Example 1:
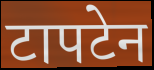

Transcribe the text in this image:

टापटेन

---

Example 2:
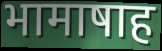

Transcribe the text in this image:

भामाषाह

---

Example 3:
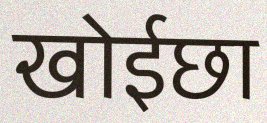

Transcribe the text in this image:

खोईछा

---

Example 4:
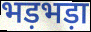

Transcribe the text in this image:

भड़भड़ा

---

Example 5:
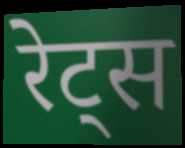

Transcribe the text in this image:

रेट्स